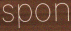
spon